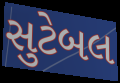
સુટેબલ